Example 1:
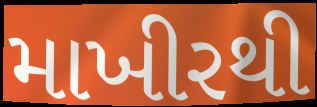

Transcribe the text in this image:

માખીરથી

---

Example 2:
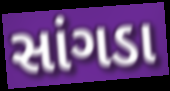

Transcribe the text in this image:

સાંગડા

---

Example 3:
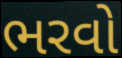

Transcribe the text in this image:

ભરવો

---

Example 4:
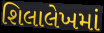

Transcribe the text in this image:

શિલાલેખમાં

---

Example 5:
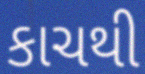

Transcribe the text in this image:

કાચથી